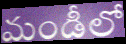
మండీలో